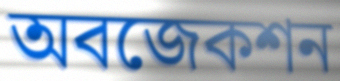
অবজেকশন